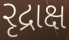
રૃદ્રાક્ષ